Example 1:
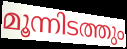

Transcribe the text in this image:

മൂന്നിടത്തും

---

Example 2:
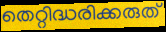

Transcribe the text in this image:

തെറ്റിദ്ധരിക്കരുത്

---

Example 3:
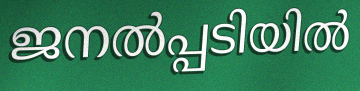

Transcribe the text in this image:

ജനൽപ്പടിയിൽ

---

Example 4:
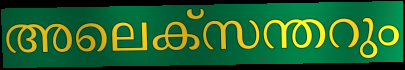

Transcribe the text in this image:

അലെക്സന്തറും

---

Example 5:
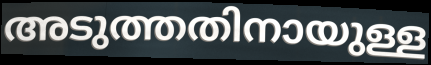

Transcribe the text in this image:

അടുത്തതിനായുള്ള